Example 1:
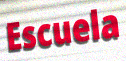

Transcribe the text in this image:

Escuela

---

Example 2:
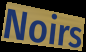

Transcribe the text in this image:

Noirs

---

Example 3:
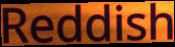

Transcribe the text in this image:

Reddish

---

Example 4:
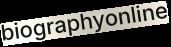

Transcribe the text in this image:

biographyonline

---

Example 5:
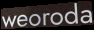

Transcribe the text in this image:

weoroda